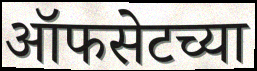
ऑफसेटच्या